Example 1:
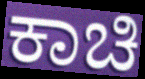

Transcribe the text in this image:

ಕಾಚಿ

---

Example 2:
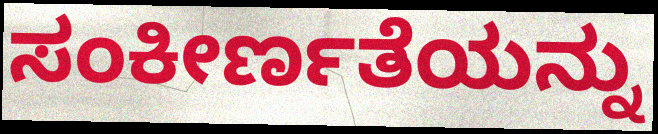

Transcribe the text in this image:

ಸಂಕೀರ್ಣತೆಯನ್ನು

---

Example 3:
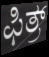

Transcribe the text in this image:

ಫಿತ್ರ್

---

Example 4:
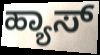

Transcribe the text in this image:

ಹ್ಯಾಸ್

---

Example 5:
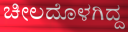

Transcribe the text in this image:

ಚೀಲದೊಳಗಿದ್ದ